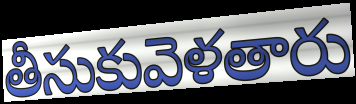
తీసుకువెళతారు